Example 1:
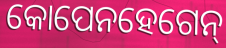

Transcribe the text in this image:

କୋପେନହେଗେନ୍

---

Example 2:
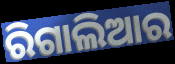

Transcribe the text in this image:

ରିଗାଲିଆର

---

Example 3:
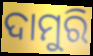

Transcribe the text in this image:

ଦାମୁରି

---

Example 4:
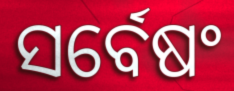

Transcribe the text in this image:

ସର୍ବେଷଂ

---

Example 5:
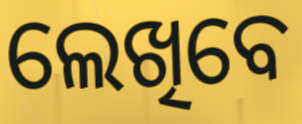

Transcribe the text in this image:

ଲେଖିବେ